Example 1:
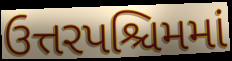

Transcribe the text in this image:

ઉત્તરપશ્ચિમમાં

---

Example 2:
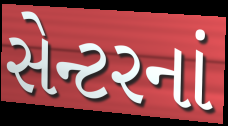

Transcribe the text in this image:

સેન્ટરનાં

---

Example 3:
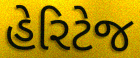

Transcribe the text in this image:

હેરિટેજ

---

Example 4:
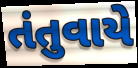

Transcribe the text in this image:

તંતુવાયે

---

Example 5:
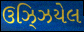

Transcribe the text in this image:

ઉઝ્ઝિયેલ